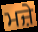
ਮਜ਼ੇ